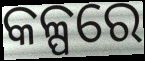
କଳ୍ପରେ